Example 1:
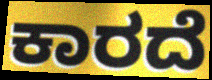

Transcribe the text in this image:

ಕಾರದೆ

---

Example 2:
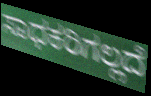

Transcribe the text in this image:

ಸಾಧಕರಿಗಲ್ಲದೆ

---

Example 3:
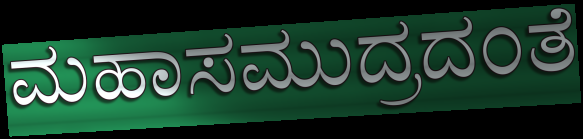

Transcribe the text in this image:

ಮಹಾಸಮುದ್ರದಂತೆ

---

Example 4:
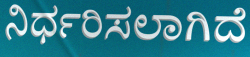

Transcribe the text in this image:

ನಿರ್ಧರಿಸಲಾಗಿದೆ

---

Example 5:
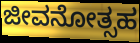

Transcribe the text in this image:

ಜೀವನೋತ್ಸಹ